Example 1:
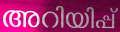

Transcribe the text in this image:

അറിയിപ്പ്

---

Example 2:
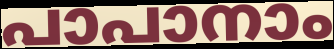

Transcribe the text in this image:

പാപാനാം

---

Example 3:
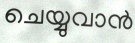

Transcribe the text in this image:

ചെയ്യുവാൻ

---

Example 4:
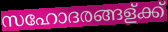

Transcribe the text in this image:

സഹോദരങ്ങള്ക്ക്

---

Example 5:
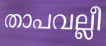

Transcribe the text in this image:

താപവല്ലീ